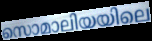
സൊമാലിയയിലെ